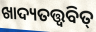
ଖାଦ୍ୟତତ୍ତ୍ୱବିତ୍